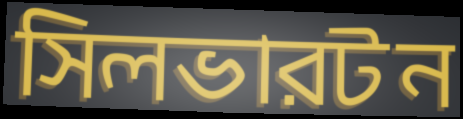
সিলভারটন